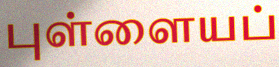
புள்ளையப்